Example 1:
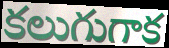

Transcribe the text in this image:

కలుగుగాక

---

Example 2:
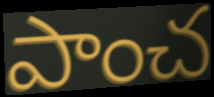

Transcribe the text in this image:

పాంచ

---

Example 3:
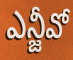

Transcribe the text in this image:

ఎన్జీవో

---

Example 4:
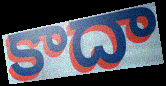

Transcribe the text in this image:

కాదా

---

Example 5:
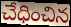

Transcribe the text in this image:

చేధించిన